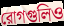
রোগগুলিও